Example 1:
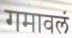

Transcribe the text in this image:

गमावलं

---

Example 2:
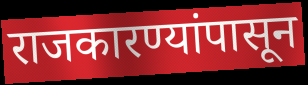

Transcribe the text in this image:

राजकारण्यांपासून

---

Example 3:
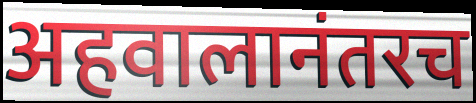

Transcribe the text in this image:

अहवालानंतरच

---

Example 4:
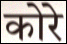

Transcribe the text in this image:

कोरे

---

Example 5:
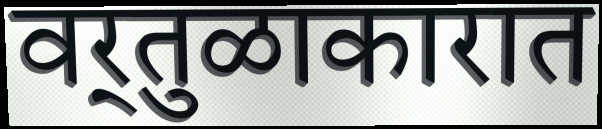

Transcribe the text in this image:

वर्तुळाकारात